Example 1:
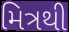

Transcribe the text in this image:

મિત્રથી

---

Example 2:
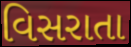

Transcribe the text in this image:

વિસરાતા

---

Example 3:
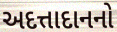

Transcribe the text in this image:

અદત્તાદાનનો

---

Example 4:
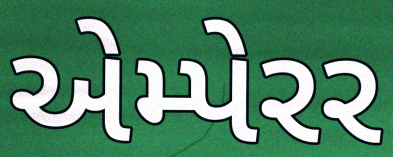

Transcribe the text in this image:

એમ્પેરર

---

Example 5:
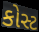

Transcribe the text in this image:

કોસ્ટ